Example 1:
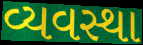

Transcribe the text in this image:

વ્યવસ્થા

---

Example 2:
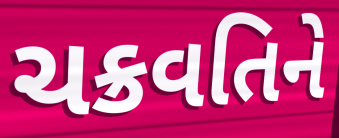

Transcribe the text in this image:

ચક્રવતિને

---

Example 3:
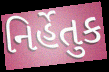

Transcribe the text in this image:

નિર્હેતુક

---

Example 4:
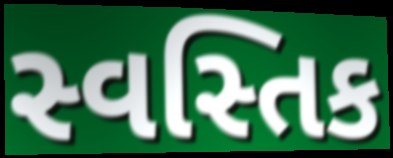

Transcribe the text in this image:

સ્વસ્તિક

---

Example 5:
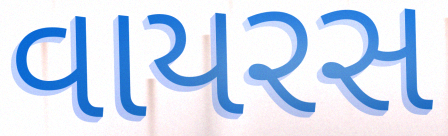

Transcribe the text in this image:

વાયરસ